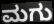
ಮಗು